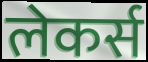
लेकर्स